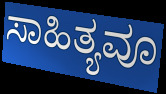
ಸಾಹಿತ್ಯವೂ